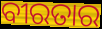
ବୀରତାର